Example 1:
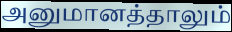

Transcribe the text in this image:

அனுமானத்தாலும்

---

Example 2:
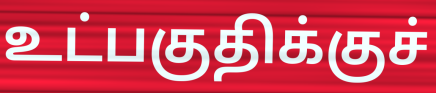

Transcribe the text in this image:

உட்பகுதிக்குச்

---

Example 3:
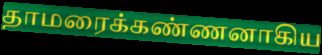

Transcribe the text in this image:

தாமரைக்கண்ணனாகிய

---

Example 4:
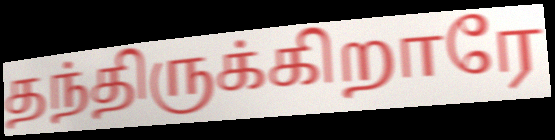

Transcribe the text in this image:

தந்திருக்கிறாரே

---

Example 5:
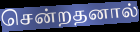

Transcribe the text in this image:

சென்றதனால்